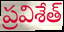
ప్రవిశేత్